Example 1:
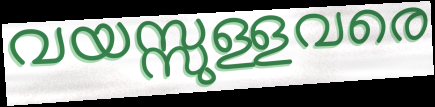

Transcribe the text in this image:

വയസ്സുള്ളവരെ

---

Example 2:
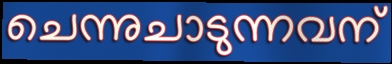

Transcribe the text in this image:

ചെന്നുചാടുന്നവന്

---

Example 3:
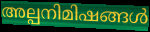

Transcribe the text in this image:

അല്പനിമിഷങ്ങൾ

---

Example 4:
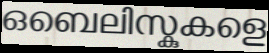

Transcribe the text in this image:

ഒബെലിസ്കുകളെ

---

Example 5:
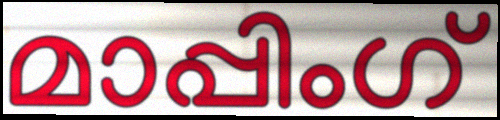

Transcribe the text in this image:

മാപ്പിംഗ്